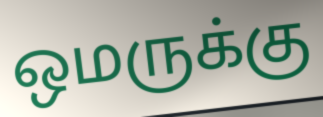
ஒமருக்கு